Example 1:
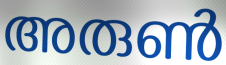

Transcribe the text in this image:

അരുൺ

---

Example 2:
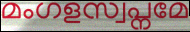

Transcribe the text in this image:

മംഗളസ്വപ്നമേ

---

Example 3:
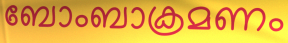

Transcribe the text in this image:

ബോംബാക്രമണം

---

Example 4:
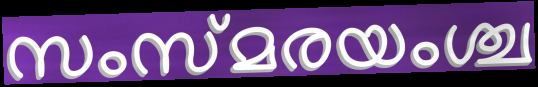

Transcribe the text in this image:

സംസ്മരയംശ്ച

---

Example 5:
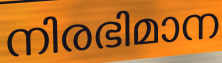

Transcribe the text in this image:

നിരഭിമാന